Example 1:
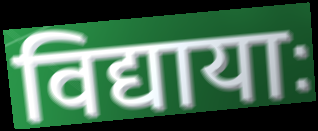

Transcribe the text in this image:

विद्यायाः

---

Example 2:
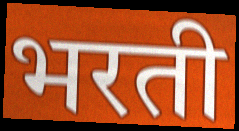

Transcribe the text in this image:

भरती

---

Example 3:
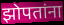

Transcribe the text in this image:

झोपतांना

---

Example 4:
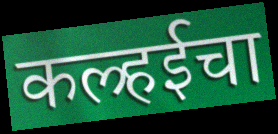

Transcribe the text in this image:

कल्हईचा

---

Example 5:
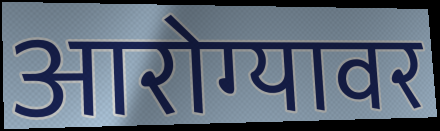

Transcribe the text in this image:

आरोग्यावर